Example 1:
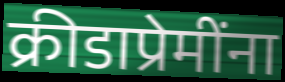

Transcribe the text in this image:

क्रीडाप्रेमींना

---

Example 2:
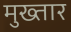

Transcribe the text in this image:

मुख्तार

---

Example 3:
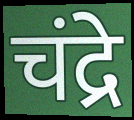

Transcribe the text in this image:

चंद्रे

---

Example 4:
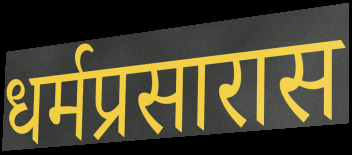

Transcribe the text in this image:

धर्मप्रसारास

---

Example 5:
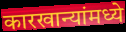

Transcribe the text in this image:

कारखान्यांमध्ये